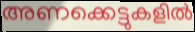
അണക്കെട്ടുകളിൽ